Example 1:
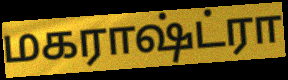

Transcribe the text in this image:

மகராஷ்ட்ரா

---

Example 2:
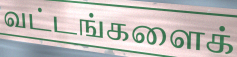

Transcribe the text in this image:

வட்டங்களைக்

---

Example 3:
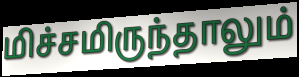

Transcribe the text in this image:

மிச்சமிருந்தாலும்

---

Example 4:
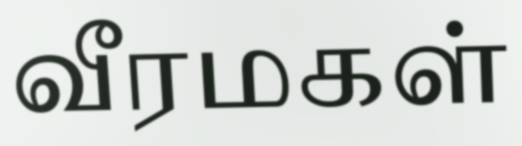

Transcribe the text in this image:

வீரமகள்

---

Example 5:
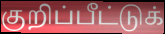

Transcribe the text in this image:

குறிப்பீட்டுக்